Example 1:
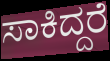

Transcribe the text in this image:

ಸಾಕಿದ್ದರೆ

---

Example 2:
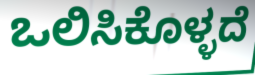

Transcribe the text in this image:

ಒಲಿಸಿಕೊಳ್ಳದೆ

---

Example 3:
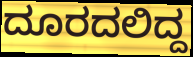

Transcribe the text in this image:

ದೂರದಲಿದ್ದ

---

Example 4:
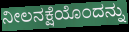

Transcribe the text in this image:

ನೀಲನಕ್ಷೆಯೊಂದನ್ನು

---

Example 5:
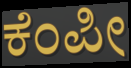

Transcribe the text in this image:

ಕೆಂಪೀ